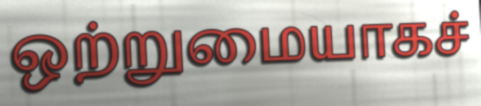
ஒற்றுமையாகச்